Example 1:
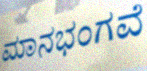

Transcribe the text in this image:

ಮಾನಭಂಗವೆ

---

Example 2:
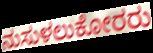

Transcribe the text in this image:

ನುಸುಳಲುಕೋರರು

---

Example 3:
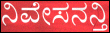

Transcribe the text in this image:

ನಿವೇಸನನ್ತಿ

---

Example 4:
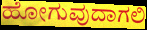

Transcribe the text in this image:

ಹೋಗುವುದಾಗಲಿ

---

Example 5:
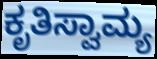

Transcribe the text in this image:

ಕೃತಿಸ್ವಾಮ್ಯ